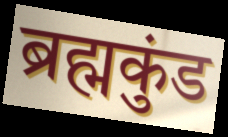
ब्रह्मकुंड